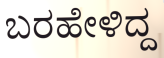
ಬರಹೇಳಿದ್ದ